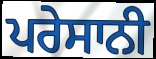
ਪਰੇਸਾਨੀ